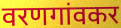
वरणगांवकर